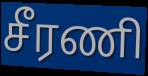
சீரணி